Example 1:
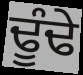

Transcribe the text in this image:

ਢੂੰਢੇ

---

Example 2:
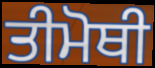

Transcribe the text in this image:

ਤੀਮੋਥੀ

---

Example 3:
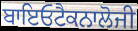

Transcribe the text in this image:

ਬਾਇਓਟੈਕਨਾਲੋਜੀ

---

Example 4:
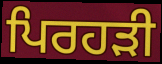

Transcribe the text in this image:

ਪਿਰਹੜੀ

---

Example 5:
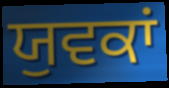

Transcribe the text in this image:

ਯੁਵਕਾਂ